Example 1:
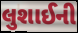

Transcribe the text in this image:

લુશાઈની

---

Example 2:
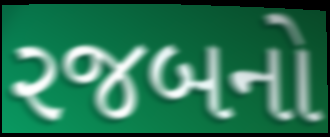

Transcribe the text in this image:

રજબનો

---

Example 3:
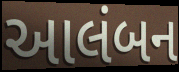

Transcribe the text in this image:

આલંબન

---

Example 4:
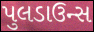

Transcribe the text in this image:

પુલડાઉન્સ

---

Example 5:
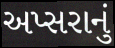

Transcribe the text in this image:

અપ્સરાનું